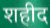
शहीद